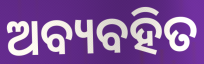
ଅବ୍ୟବହିତ